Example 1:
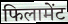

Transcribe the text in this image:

फिलामेंट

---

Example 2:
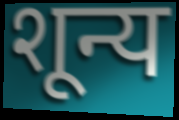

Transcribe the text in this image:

शून्य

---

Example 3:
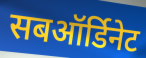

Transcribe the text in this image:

सबऑर्डिनेट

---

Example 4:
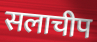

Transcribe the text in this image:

सलाचीप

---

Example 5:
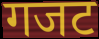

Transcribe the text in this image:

गजट